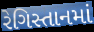
રેગિસ્તાનમાં